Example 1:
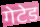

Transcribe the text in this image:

गेटेड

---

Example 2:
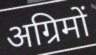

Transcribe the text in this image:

अग्रिमों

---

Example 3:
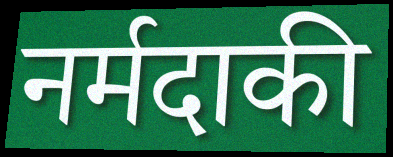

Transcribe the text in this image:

नर्मदाकी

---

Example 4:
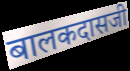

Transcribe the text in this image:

बालकदासजी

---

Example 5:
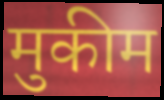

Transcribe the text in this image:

मुकीम